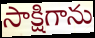
సాక్షిగాను